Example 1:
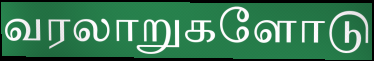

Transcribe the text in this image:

வரலாறுகளோடு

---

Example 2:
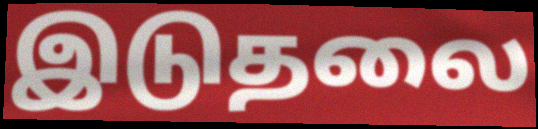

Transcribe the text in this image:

இடுதலை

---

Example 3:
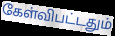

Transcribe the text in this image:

கேள்விபட்டதும்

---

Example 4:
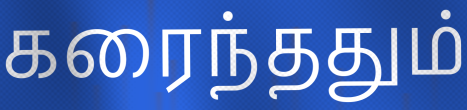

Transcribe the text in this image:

கரைந்ததும்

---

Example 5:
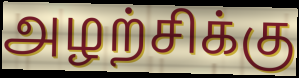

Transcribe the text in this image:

அழற்சிக்கு